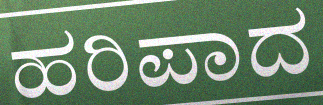
ಹರಿಪಾದ